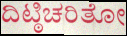
ದಿಟ್ಠಿಚರಿತೋ